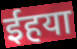
ईहया